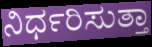
ನಿರ್ಧರಿಸುತ್ತಾ